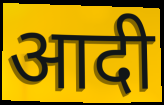
आदी